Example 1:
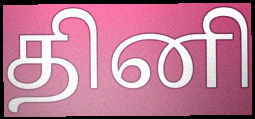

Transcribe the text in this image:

தினி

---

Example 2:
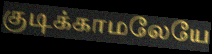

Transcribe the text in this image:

குடிக்காமலேயே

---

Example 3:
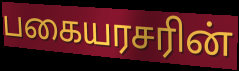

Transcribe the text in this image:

பகையரசரின்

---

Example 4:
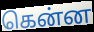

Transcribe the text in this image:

கென்ன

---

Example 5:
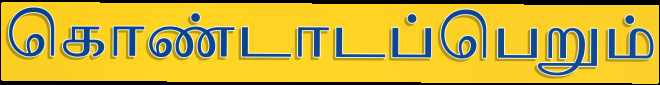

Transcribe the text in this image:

கொண்டாடப்பெறும்